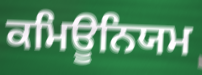
ਕਮਿਊਨਿਯਮ